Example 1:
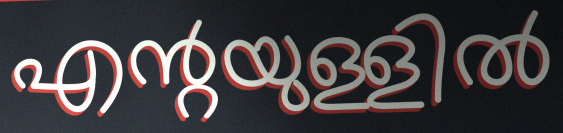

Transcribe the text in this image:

എന്റയുള്ളിൽ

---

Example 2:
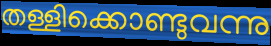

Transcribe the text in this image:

തള്ളിക്കൊണ്ടുവന്നു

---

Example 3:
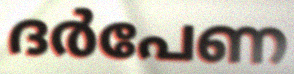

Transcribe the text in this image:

ദർപേണ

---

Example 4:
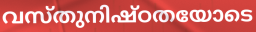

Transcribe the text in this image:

വസ്തുനിഷ്ഠതയോടെ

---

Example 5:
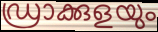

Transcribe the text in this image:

ഡ്രാക്കുളയും